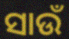
ସାଉଁ